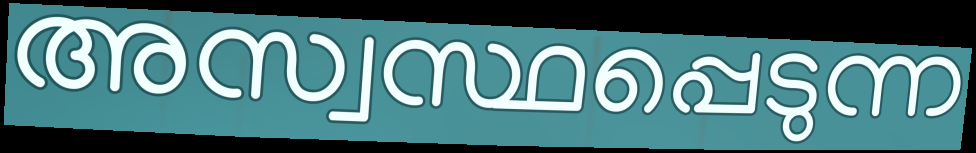
അസ്വസ്ഥപ്പെടുന്ന